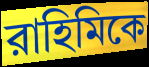
রাহিমিকে